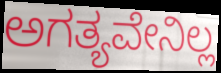
ಅಗತ್ಯವೇನಿಲ್ಲ